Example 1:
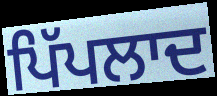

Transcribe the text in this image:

ਪਿੱਪਲਾਦ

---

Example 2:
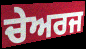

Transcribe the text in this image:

ਚੇਅਰਜ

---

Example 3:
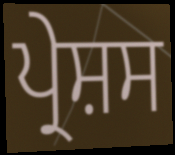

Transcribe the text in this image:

ਪ੍ਰੇਸ਼ਸ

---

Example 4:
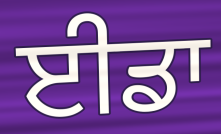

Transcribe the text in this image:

ਈਡਾ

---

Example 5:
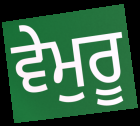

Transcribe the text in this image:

ਵੇਮੁਰੂ